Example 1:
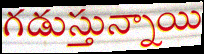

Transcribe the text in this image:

గడుస్తున్నాయి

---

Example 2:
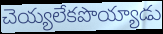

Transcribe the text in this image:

చెయ్యలేకపొయ్యాడు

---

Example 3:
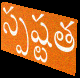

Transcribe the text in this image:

స్పష్టత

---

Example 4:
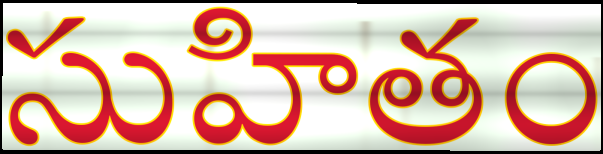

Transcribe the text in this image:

సుహితం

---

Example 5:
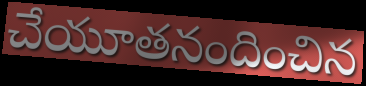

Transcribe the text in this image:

చేయూతనందించిన